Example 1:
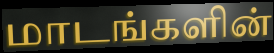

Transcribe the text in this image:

மாடங்களின்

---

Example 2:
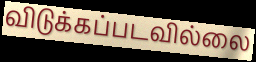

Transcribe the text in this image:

விடுக்கப்படவில்லை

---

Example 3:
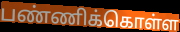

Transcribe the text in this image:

பண்ணிக்கொள்ள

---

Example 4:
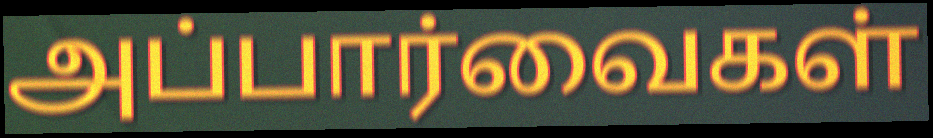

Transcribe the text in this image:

அப்பார்வைகள்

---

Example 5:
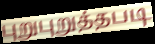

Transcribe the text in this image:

புறுபுறுத்தபடி